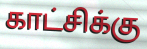
காட்சிக்கு